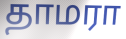
தாமரா